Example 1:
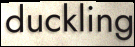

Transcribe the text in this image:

duckling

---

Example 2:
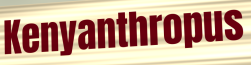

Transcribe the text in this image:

Kenyanthropus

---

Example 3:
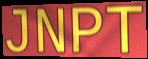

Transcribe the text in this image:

JNPT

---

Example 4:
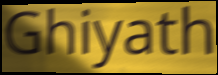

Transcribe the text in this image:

Ghiyath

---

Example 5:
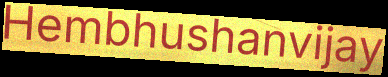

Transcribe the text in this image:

Hembhushanvijay